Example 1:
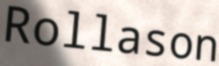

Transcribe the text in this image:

Rollason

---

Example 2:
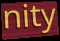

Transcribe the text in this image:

nity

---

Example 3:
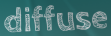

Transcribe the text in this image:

diffuse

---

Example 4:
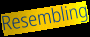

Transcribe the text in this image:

Resembling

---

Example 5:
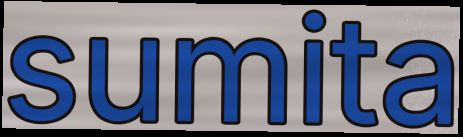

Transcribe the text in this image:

sumita